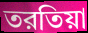
তরতিয়া